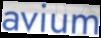
avium